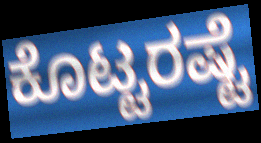
ಕೊಟ್ಟರಷ್ಟೆ